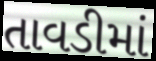
તાવડીમાં